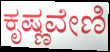
ಕೃಷ್ಣವೇಣಿ